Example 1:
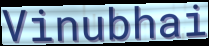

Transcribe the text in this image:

Vinubhai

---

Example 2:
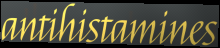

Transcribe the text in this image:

antihistamines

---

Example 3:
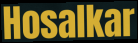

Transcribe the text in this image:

Hosalkar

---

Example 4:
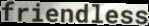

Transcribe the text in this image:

friendless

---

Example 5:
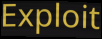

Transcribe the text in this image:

Exploit